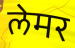
लेमर